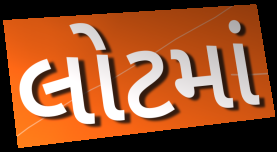
લોટમાં